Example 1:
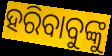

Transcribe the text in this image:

ହରିବାବୁଙ୍କୁ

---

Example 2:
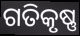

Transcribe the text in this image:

ଗତିକୃଷ୍ଣ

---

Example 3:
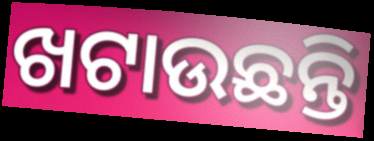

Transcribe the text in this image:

ଖଟାଉଛନ୍ତି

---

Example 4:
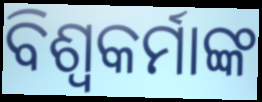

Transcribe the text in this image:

ବିଶ୍ୱକର୍ମାଙ୍କ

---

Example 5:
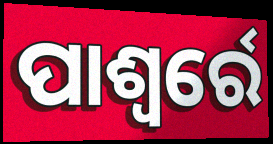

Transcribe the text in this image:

ପାଶ୍ୱର୍ରେ